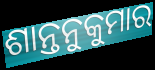
ଶାନ୍ତନୁକୁମାର